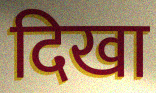
दिखा